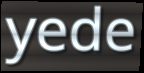
yede